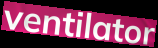
ventilator